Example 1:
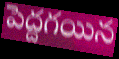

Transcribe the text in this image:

పెద్దగయిన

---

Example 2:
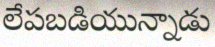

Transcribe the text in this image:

లేపబడియున్నాడు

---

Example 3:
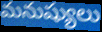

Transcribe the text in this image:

మనుష్యులు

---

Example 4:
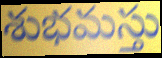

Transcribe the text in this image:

శుభమస్తు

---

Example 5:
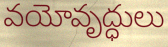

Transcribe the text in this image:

వయోవృద్ధులు